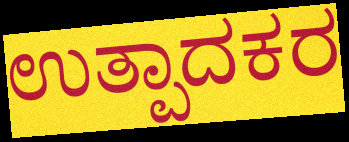
ಉತ್ಪಾದಕರ